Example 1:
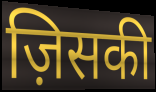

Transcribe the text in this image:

ज़िसकी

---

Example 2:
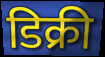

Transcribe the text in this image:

डिक्री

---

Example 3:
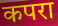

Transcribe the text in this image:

कपरा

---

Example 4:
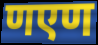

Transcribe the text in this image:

णएण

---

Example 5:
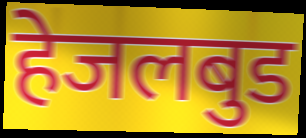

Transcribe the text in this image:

हेजलबुड